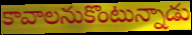
కావాలనుకొంటున్నాడు